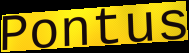
Pontus